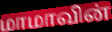
மாமாவின்